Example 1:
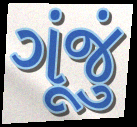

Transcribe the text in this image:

ગૂંજું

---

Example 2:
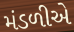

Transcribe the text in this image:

મંડળીએ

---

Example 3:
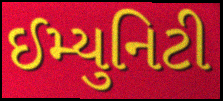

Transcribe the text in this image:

ઈમ્યુનિટી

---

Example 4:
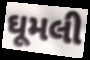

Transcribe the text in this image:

ઘૂમલી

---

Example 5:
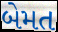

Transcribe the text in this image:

બેમત